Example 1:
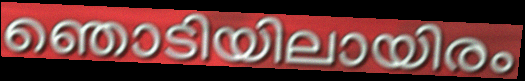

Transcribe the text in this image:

ഞൊടിയിലായിരം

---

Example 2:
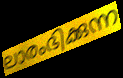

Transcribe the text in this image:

ലാരംഭിക്കുന്ന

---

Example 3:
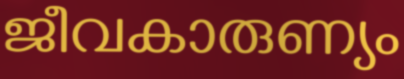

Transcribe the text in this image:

ജീവകാരുണ്യം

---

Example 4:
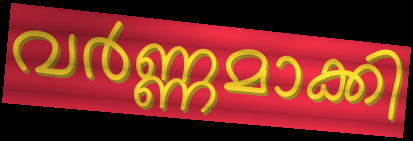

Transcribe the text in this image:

വർണ്ണമാക്കി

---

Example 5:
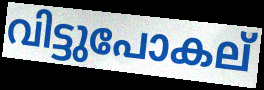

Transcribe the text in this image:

വിട്ടുപോകല്